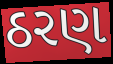
ઠરણ